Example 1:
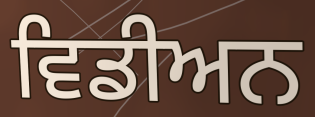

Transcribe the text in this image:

ਵਿਡੀਅਨ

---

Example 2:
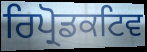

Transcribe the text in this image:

ਰਿਪ੍ਰੋਡਕਟਿਵ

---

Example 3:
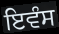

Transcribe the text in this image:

ਇਵੰਸ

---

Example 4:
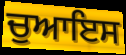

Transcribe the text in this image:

ਚੁਆਇਸ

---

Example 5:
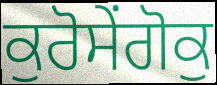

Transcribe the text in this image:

ਕੁਰੋਸੇਂਗੋਕੁ